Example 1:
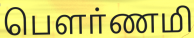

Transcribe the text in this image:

பௌர்ணமி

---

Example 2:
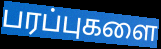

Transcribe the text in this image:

பரப்புகளை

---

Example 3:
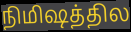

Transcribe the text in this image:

நிமிஷத்தில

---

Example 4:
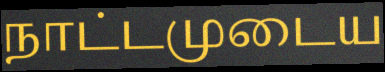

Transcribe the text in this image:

நாட்டமுடைய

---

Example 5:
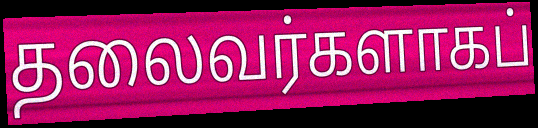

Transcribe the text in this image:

தலைவர்களாகப்